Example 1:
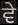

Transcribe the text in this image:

ਵੇ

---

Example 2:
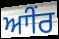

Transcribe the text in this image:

ਆੀਂਰ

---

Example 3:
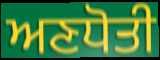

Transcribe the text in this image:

ਅਣਧੋਤੀ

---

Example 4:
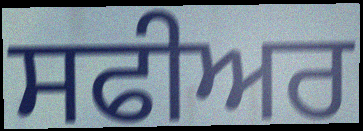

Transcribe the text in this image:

ਸਫੀਅਰ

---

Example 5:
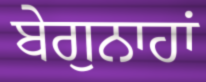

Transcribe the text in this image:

ਬੇਗੁਨਾਹਾਂ